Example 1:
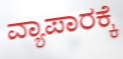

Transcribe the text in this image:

ವ್ಯಾಪಾರಕ್ಕೆ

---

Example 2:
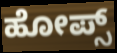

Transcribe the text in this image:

ಹೋಪ್ಸ್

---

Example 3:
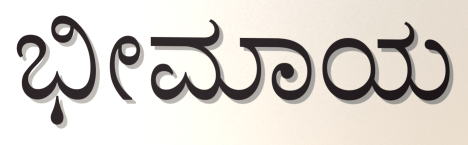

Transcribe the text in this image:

ಭೀಮಾಯ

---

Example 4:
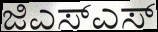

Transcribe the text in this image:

ಜಿಎಸ್ಎಸ್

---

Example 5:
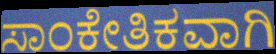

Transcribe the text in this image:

ಸಾಂಕೇತಿಕವಾಗಿ